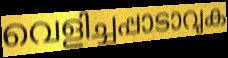
വെളിച്ചപ്പാടാവുക